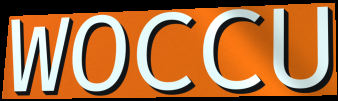
WOCCU